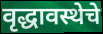
वृद्धावस्थेचे